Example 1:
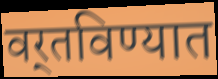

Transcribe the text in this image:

वर्तविण्यात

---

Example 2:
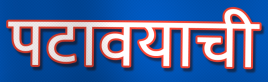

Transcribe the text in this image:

पटावयाची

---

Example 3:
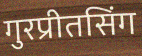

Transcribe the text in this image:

गुरप्रीतसिंग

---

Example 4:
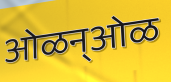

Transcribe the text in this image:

ओळन्ओळ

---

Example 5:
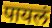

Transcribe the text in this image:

पायलं